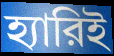
হ্যারিই